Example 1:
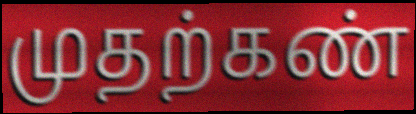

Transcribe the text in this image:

முதற்கண்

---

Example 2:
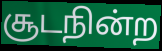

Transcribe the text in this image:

சூடநின்ற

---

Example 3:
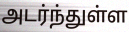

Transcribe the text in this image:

அடர்ந்துள்ள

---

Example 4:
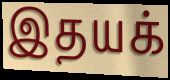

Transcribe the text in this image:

இதயக்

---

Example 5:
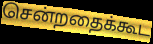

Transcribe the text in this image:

சென்றதைக்கூட